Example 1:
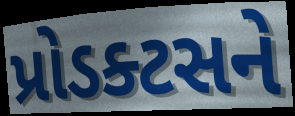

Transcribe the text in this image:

પ્રોડક્ટસને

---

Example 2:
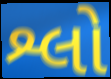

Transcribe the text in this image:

શ્લો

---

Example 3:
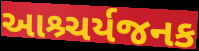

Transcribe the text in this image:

આશ્ર્ચર્યજનક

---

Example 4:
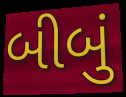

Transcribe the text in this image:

બીબું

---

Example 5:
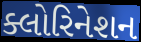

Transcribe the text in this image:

ક્લોરિનેશન